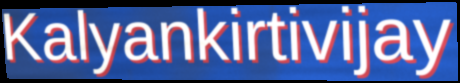
Kalyankirtivijay